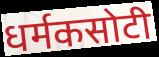
धर्मकसोटी